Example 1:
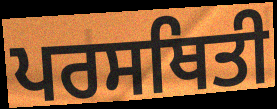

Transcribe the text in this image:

ਪਰਸਥਿਤੀ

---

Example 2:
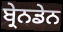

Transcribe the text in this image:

ਬ੍ਰੇਨਡੇਨ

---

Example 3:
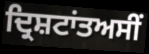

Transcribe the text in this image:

ਦ੍ਰਿਸ਼ਟਾਂਤਅਸੀਂ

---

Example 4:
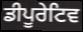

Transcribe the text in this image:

ਡੀਪੂਰੇਟਿਵ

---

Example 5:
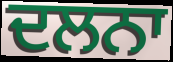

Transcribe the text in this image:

ਦਲਨਾ